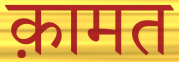
क़ामत